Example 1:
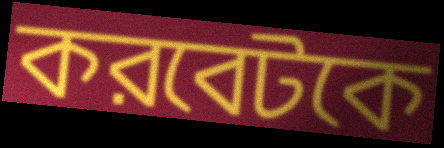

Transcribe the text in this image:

করবেটকে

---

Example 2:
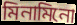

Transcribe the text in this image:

মিনামিনো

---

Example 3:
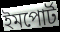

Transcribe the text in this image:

ইমপোর্ট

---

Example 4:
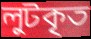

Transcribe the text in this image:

লুটকৃত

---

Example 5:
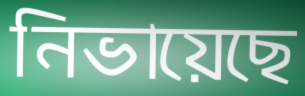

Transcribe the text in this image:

নিভায়েছে